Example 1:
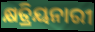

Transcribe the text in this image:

କ୍ଷତ୍ରିୟନାରୀ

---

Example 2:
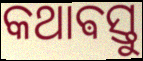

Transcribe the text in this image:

କଥାଵସ୍ତୁ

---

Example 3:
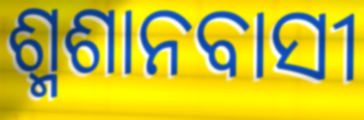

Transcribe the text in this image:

ଶ୍ମଶାନବାସୀ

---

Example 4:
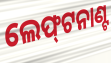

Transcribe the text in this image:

ଲେଫ୍‌ଟନାଣ୍ଟ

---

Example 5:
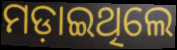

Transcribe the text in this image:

ମଡ଼ାଇଥିଲେ